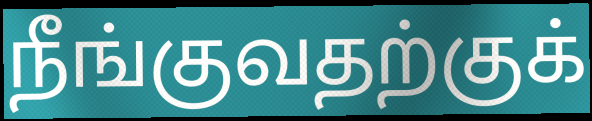
நீங்குவதற்குக்